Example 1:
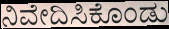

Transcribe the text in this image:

ನಿವೇದಿಸಿಕೊಂಡು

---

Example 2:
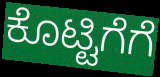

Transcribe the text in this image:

ಕೊಟ್ಟಿಗೆಗೆ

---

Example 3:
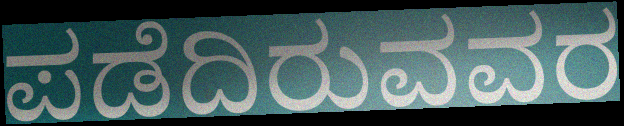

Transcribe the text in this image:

ಪಡೆದಿರುವವರ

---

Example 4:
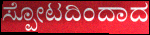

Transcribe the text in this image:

ಸ್ಪೋಟದಿಂದಾದ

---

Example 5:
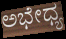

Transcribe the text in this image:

ಅಭೇಧ್ಯ